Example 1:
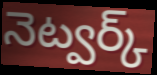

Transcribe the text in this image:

నెట్వర్క్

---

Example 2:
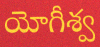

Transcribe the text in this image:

యోగీశ్వ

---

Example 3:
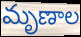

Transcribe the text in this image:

మృణాల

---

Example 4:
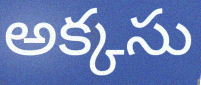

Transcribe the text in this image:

అక్కసు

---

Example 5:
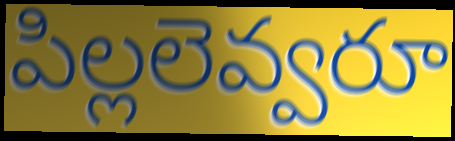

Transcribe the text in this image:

పిల్లలెవ్వరూ